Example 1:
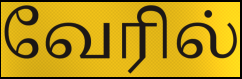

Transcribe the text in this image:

வேரில்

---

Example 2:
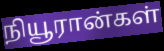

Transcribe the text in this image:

நியூரான்கள்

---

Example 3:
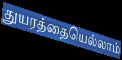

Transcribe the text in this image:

துயரத்தையெல்லாம்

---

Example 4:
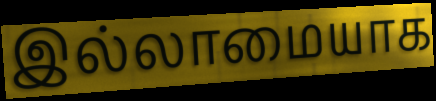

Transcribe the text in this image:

இல்லாமையாக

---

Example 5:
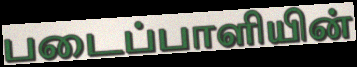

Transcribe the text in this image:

படைப்பாளியின்